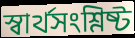
স্বার্থসংশ্নিষ্ট